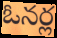
ఓనర్ల